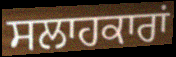
ਸਲਾਹਕਾਰਾਂ